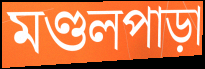
মণ্ডলপাড়া